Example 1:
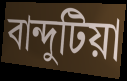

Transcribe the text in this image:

বান্দুটিয়া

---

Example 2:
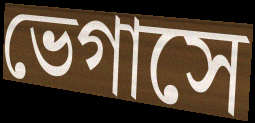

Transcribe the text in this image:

ভেগাসে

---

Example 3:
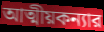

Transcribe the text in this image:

আত্মীয়কন্যার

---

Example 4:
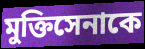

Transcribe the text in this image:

মুক্তিসেনাকে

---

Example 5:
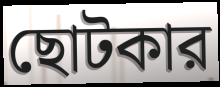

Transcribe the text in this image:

ছোটকার